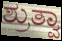
ಶ್ರುತ್ವಾ